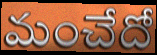
మంచేదో